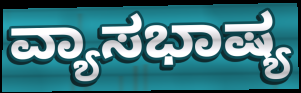
ವ್ಯಾಸಭಾಷ್ಯ